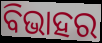
ବିଭାହର